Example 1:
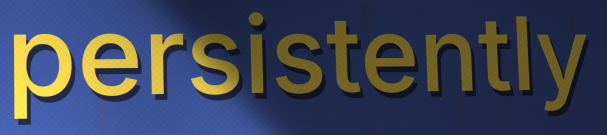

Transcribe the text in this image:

persistently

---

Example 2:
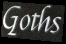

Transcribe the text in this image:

Goths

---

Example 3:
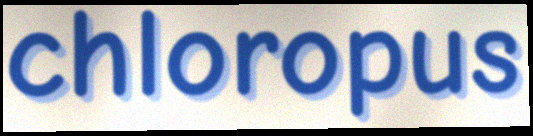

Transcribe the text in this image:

chloropus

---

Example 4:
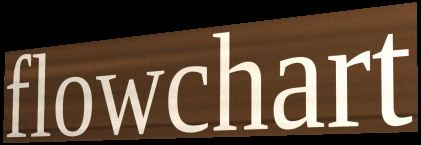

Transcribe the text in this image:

flowchart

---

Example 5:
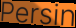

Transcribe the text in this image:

Persin